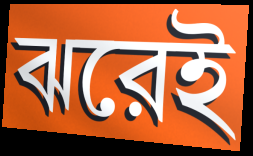
ঝরেই